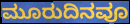
ಮೂರುದಿನವೂ